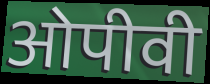
ओपीवी